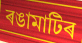
ৰঙামাটিৰ